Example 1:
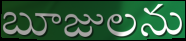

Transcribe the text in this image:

బూజులను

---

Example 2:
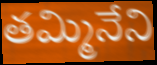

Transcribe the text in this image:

తమ్మినేని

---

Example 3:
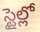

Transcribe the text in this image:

స్టైల్లో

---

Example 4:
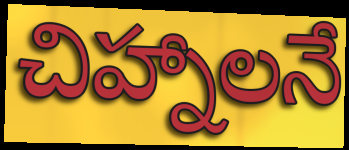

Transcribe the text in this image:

చిహ్నాలనే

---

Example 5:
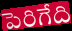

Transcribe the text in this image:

పెరిగేది